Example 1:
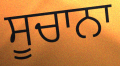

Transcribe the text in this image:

ਸੂਚਾਨਾ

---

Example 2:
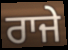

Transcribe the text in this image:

ਰਾਜੇ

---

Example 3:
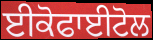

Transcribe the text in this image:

ਈਕੋਫਾਈਟੋਲ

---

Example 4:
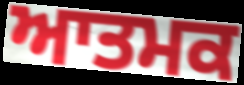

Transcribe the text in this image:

ਆਤਮਕ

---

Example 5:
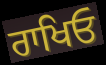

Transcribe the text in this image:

ਰਾਖਿਓ